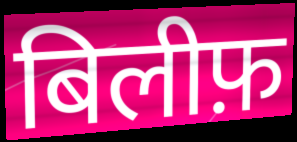
बिलीफ़